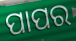
ପାପର